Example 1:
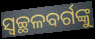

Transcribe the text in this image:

ସ୍ବଚ୍ଛଳବର୍ଗଙ୍କୁ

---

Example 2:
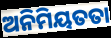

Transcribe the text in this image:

ଅନିମିୟତତା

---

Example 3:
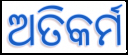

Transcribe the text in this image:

ଅତିକର୍ମ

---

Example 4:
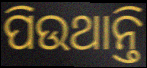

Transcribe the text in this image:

ପିଉଥାନ୍ତି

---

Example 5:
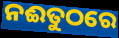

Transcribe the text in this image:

ନଈତୁଠରେ